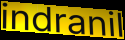
indranil